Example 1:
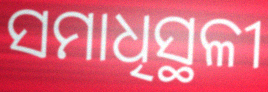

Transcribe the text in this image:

ସମାଧିସ୍ଥଳୀ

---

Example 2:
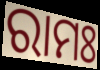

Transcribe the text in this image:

ରାମଃ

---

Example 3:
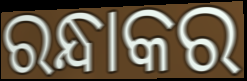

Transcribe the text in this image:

ରନ୍ଧାକର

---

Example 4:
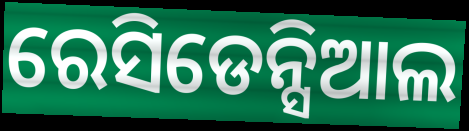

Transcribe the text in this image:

ରେସିଡେନ୍ସିଆଲ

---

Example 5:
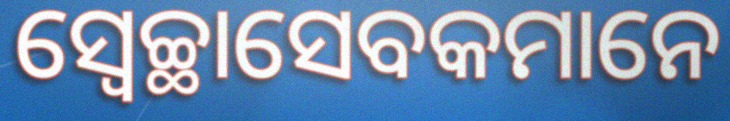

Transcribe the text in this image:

ସ୍ୱେଚ୍ଛାସେବକମାନେ